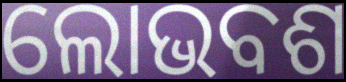
ଲୋଭବଶ